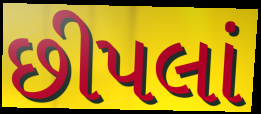
છીપલાં